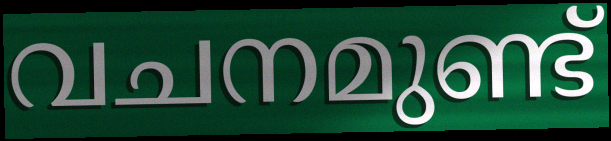
വചനമുണ്ട്